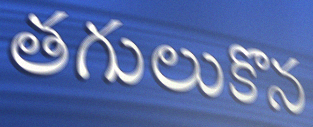
తగులుకొన